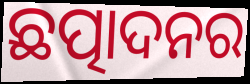
ଛତ୍ପାଦନର